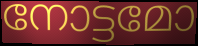
നോട്ടമോ